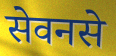
सेवनसे